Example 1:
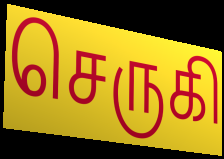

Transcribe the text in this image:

செருகி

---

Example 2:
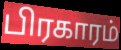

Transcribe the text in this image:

பிரகாரம்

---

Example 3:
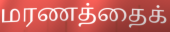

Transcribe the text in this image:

மரணத்தைக்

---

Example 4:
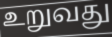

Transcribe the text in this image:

உறுவது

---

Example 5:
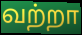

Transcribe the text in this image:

வற்றா